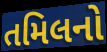
તમિલનો